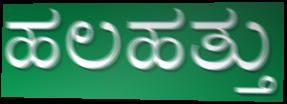
ಹಲಹತ್ತು